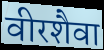
वीरशैवा